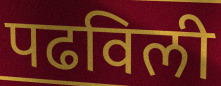
पढविली